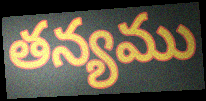
తన్యము